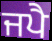
ਜਪੈ